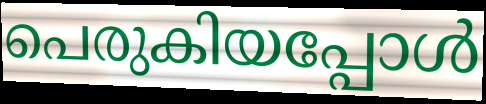
പെരുകിയപ്പോൾ